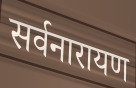
सर्वनारायण